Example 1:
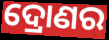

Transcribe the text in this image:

ଦ୍ରୋଣର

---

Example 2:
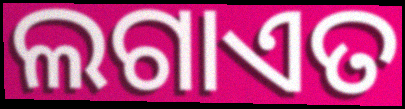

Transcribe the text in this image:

ଲଗାଏତ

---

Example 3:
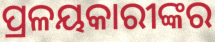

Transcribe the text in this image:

ପ୍ରଳୟକାରୀଙ୍କର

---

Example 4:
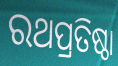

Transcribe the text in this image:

ରଥପ୍ରତିଷ୍ଠା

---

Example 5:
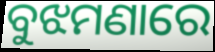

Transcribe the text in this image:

ବୁଝମଣାରେ